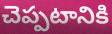
చెప్పటానికి